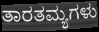
ತಾರತಮ್ಯಗಳು